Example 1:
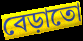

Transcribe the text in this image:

বেড়াতো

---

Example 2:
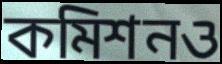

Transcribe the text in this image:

কমিশনও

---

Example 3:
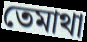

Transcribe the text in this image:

তেমাথা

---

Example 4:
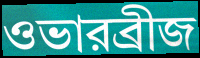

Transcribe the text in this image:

ওভারব্রীজ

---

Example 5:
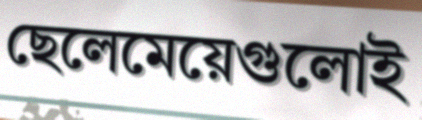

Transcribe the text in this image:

ছেলেমেয়েগুলোই